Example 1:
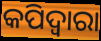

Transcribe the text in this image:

କପିଦ୍ୱାରା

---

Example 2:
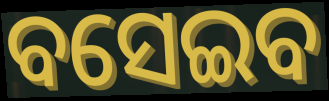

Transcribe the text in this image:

ବସେଇବ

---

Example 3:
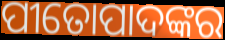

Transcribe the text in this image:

ପୀତୋପାଦଙ୍କର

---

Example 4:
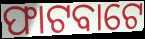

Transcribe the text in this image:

ଫାଟବାଟେ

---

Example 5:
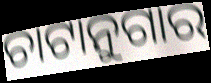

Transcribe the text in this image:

ଚାଟାନୁଗାର